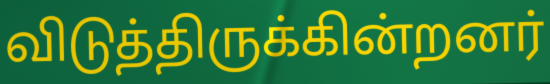
விடுத்திருக்கின்றனர்